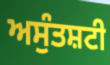
ਅਸੁੰਤਸ਼ਟੀ